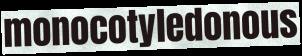
monocotyledonous